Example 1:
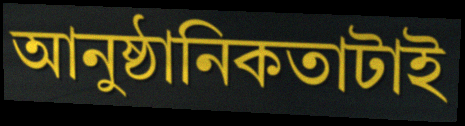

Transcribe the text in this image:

আনুষ্ঠানিকতাটাই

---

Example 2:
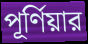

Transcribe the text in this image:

পূর্ণিয়ার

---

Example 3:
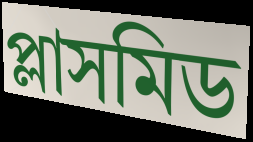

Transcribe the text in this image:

প্লাসমিড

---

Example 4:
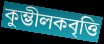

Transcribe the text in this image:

কুম্ভীলকবৃত্তি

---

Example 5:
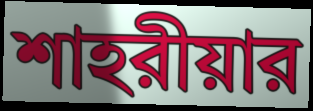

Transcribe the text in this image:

শাহরীয়ার